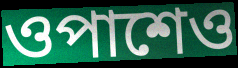
ওপাশেও